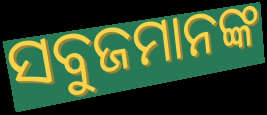
ସବୁଜମାନଙ୍କ